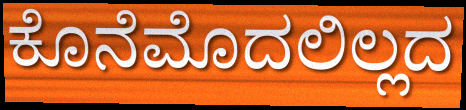
ಕೊನೆಮೊದಲಿಲ್ಲದ